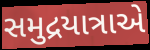
સમુદ્રયાત્રાએ